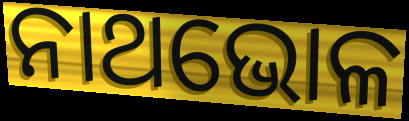
ନାଥଭୋଳ